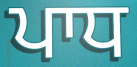
ਪਾਧ